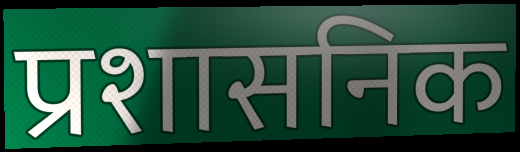
प्रशासनिक